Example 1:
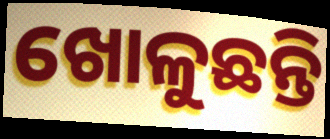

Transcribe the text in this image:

ଖୋଳୁଛନ୍ତି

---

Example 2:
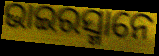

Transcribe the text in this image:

ଭାଇରସ୍ମାନେ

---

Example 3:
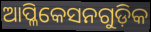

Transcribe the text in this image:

ଆପ୍ଳିକେସନଗୁଡ଼ିକ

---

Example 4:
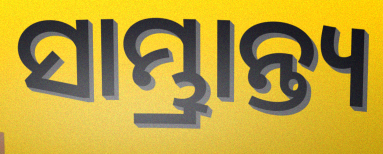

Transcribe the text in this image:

ସାମ୍ଭ୍ରାନ୍ତ୍ୟ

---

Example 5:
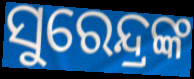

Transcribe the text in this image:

ସୁରେନ୍ଦ୍ରଙ୍କ